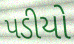
પડીયો